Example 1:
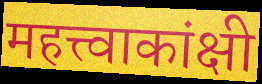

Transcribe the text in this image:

महत्त्वाकांक्षी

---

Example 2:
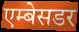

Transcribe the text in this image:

एम्‍बेसडर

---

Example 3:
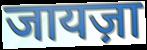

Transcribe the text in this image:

जायज़ा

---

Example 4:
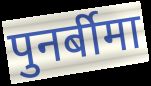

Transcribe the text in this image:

पुनर्बीमा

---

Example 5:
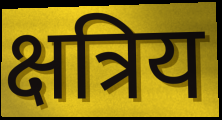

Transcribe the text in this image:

क्षत्रिय